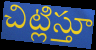
చిట్లిస్తూ